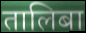
तालिबा